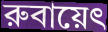
রুবায়েৎ